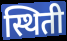
स्थिती